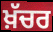
ਖ਼ੱਚਰ